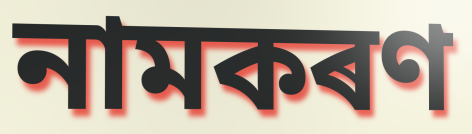
নামকৰণ